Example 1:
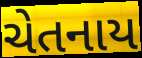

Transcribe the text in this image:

ચેતનાય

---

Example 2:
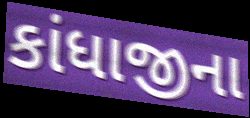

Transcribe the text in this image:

કાંધાજીના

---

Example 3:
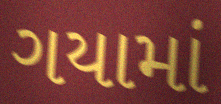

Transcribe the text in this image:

ગયામાં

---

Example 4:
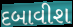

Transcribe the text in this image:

દબાવીશ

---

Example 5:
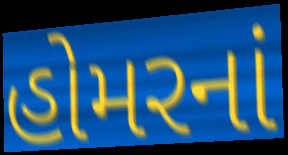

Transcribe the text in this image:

હોમરનાં